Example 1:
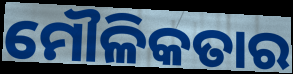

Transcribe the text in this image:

ମୌଳିକତାର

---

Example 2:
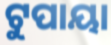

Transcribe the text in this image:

ଟୁପାୟା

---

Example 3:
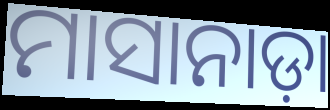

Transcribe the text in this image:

ମାସାନାଡ଼ା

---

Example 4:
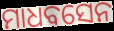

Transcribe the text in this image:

ମାଧବସେନ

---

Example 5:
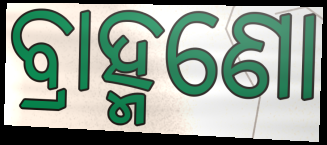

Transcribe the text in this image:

ବ୍ରାହ୍ମଣୋ